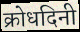
क्रोधदिनी